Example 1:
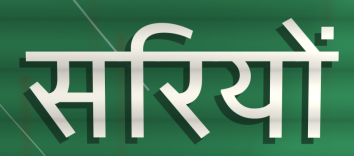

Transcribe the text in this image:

सरियों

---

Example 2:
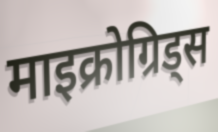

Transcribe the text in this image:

माइक्रोग्रिड्स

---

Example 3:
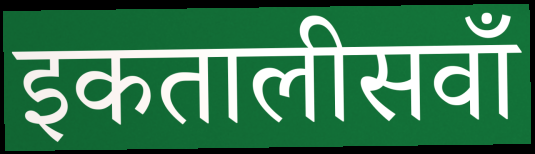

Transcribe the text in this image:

इकतालीसवाँ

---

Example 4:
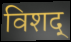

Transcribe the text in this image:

विशद्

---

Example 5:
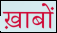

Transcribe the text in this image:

ख़ाबों